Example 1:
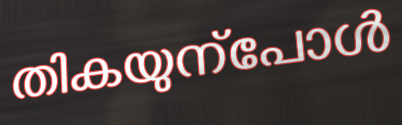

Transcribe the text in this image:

തികയുന്പോൾ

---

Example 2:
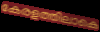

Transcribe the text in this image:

കേരളത്തിലാകെ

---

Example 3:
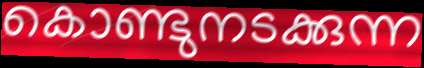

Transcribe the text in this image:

കൊണ്ടുനടക്കുന്ന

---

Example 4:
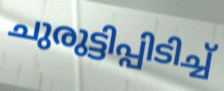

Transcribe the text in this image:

ചുരുട്ടിപ്പിടിച്ച്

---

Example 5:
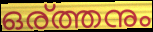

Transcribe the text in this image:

ഒര്ത്തനും